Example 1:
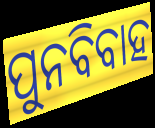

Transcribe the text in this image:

ପୁନବିବାହ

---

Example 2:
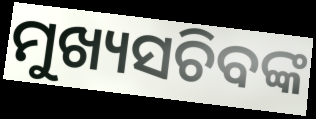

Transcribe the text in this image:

ମୁଖ୍ୟସଚିବଙ୍କ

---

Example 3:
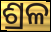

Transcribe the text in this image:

ଶ୍ରଳ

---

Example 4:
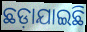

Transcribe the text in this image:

ଛଡ଼ାଯାଇଛି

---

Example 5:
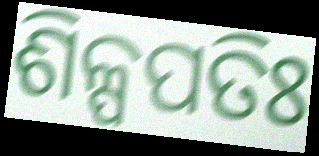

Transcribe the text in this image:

ଶିଳ୍ପପତିଃ